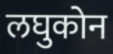
लघुकोन